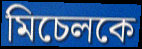
মিচেলকে